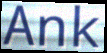
Ank